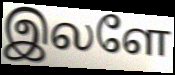
இலளே